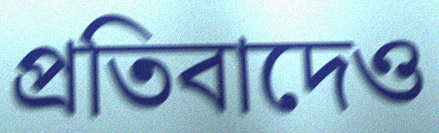
প্রতিবাদেও